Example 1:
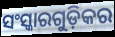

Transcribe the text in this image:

ସଂସ୍କାରଗୁଡ଼ିକର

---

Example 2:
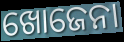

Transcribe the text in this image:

ଖୋଜେନା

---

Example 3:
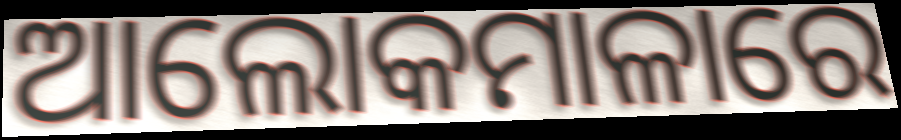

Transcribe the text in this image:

ଆଲୋକମାଳାରେ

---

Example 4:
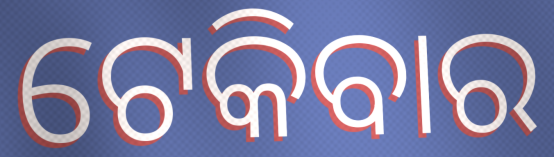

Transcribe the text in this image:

ଟେକିବାର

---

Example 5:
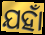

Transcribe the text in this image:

ଯହାଁ